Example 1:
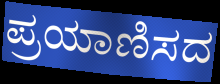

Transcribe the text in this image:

ಪ್ರಯಾಣಿಸದ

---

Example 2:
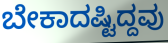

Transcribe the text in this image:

ಬೇಕಾದಷ್ಟಿದ್ದವು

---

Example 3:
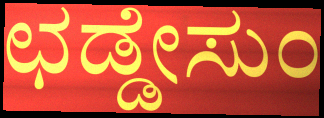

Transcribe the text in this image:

ಛಡ್ಡೇಸುಂ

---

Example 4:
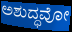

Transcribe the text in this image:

ಅಶುದ್ಧವೋ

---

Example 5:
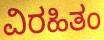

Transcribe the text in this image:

ವಿರಹಿತಂ